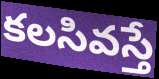
కలసివస్తే